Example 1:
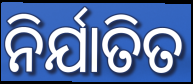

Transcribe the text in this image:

ନିର୍ଯାତିତ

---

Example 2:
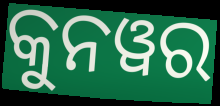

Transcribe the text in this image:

କୁନୱର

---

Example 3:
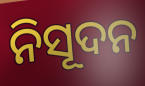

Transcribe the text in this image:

ନିସୂଦନ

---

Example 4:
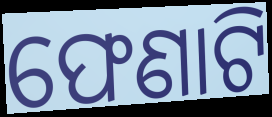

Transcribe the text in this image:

ଫେଣାଟି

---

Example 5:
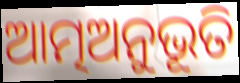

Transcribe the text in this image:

ଆତ୍ମଅନୁଭୂତି